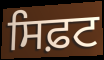
ਸਿਫ਼ਟ